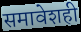
समावेशही